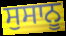
ਸੁਸਾਨੂ